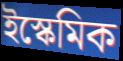
ইস্কেমিক